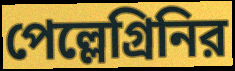
পেল্লেগ্রিনির